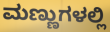
ಮಣ್ಣುಗಳಲ್ಲಿ